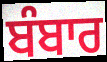
ਬੰਬਾਰ